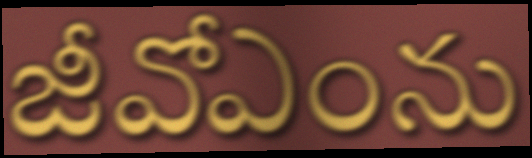
జీవోఎంను